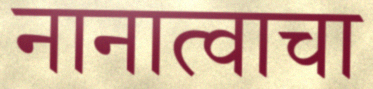
नानात्वाचा